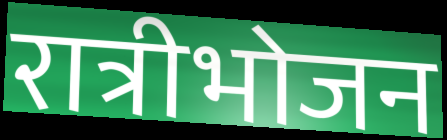
रात्रीभोजन